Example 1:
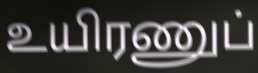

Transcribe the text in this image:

உயிரணுப்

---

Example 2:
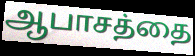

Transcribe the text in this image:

ஆபாசத்தை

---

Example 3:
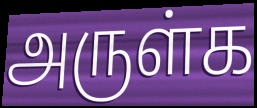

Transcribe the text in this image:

அருள்க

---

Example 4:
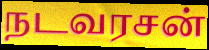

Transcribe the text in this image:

நடவரசன்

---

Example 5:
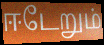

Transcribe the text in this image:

ஈடேறும்